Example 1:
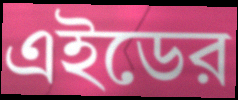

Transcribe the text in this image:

এইডের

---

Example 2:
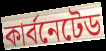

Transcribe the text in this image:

কার্বনেটেড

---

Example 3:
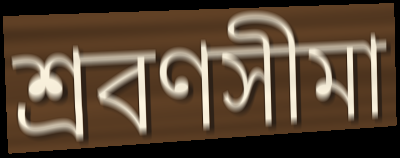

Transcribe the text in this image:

শ্রবণসীমা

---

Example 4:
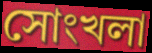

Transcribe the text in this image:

সোংখলা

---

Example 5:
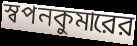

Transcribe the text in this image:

স্বপনকুমারের